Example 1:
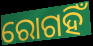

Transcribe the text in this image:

ରୋଗହିଁ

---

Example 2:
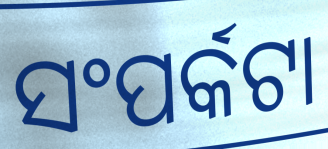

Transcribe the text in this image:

ସଂପର୍କଟା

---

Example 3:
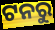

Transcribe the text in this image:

ଟନରୁ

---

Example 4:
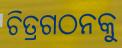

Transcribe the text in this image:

ଚିତ୍ରଗଠନକୁ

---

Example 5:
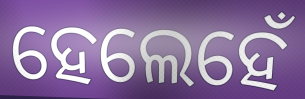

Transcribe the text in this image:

ହେଲେହେଁ